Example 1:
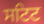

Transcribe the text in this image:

ਸਟਿਟ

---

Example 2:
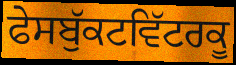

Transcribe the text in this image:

ਫੇਸਬੁੱਕਟਵਿੱਟਰਕੂ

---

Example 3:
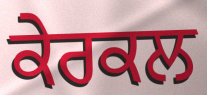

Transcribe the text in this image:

ਕੇਰਕਲ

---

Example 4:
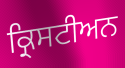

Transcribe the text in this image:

ਕ੍ਰਿਸਟੀਅਨ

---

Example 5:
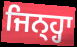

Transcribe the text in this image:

ਜਿਨ੍ਹ੍ਹਾ